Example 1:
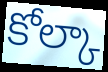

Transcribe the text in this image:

కోల్కా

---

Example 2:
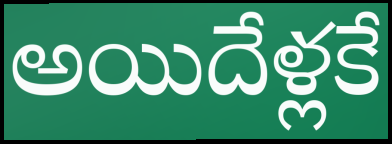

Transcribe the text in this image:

అయిదేళ్లకే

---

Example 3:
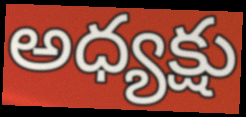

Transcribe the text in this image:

అధ్యక్షు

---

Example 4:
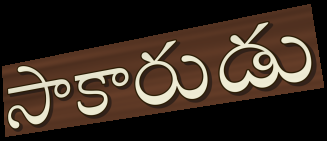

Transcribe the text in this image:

సాకారుడు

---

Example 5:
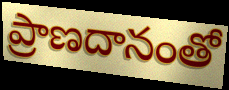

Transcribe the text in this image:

ప్రాణదానంతో